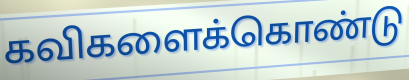
கவிகளைக்கொண்டு